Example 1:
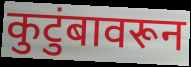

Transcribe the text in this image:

कुटुंबावरून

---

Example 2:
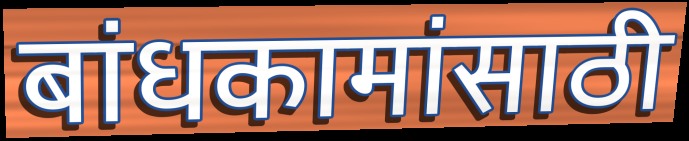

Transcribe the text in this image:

बांधकामांसाठी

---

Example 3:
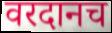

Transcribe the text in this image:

वरदानच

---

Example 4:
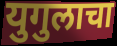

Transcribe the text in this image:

युगुलाचा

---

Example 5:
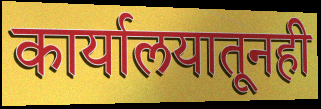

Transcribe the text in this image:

कार्यालयातूनही